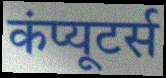
कंप्यूटर्स